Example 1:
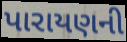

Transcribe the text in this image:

પારાયણની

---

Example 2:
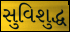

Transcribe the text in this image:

સુવિશુદ્ધ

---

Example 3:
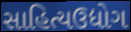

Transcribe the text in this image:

સાહિત્યઉદ્યોગ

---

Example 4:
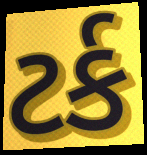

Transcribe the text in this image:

ટર્ક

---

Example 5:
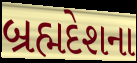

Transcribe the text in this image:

બ્રહ્મદેશના